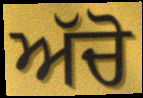
ਅੱਚੋ